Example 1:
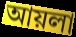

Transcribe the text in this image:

আয়লা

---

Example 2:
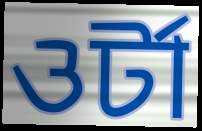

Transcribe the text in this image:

ওর্টা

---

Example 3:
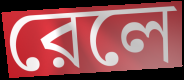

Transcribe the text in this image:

রেলে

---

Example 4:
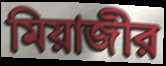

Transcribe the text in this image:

মিয়াজীর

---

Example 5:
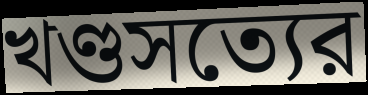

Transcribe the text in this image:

খণ্ডসত্যের